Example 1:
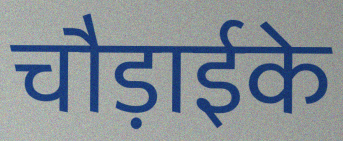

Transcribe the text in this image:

चौड़ाईके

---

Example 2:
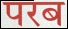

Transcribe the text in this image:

परब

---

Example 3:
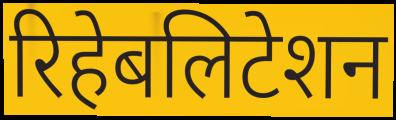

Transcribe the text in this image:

रिहेबलिटेशन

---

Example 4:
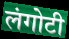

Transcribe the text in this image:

लंगोटी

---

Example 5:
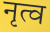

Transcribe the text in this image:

नृत्व